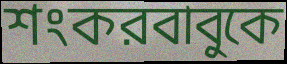
শংকরবাবুকে